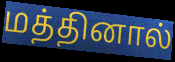
மத்தினால்